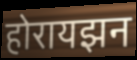
होरायझन